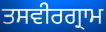
ਤਸਵੀਰਗ੍ਰਾਮ